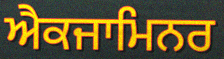
ਐਕਜਾਮਿਨਰ